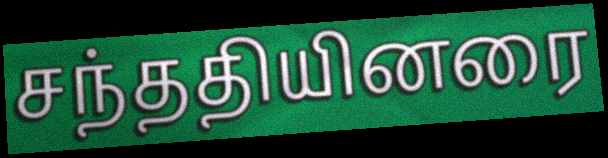
சந்ததியினரை